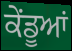
ਕੇਂਡੂਆਂ